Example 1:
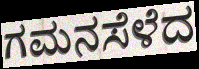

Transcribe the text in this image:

ಗಮನಸೆಳೆದ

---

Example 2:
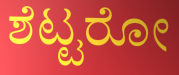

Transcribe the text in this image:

ಶೆಟ್ಟರೋ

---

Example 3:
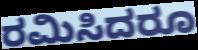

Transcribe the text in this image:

ರಮಿಸಿದರೂ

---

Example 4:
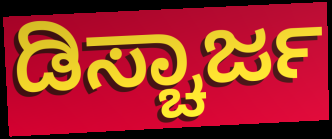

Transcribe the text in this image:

ಡಿಸ್ಚಾರ್ಜ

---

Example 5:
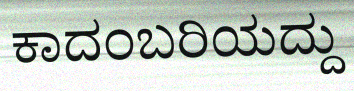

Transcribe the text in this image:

ಕಾದಂಬರಿಯದ್ದು